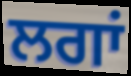
ਲਗਾਂ